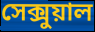
সেক্সুয়াল